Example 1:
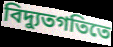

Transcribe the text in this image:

বিদ্যুতগতিতে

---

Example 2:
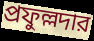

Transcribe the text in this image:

প্রফুল্লদার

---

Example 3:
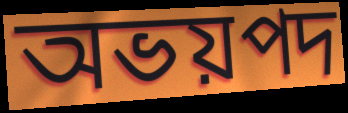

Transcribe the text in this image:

অভয়পদ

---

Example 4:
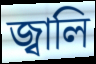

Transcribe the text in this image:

জ্বালি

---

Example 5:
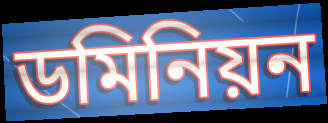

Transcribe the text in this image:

ডমিনিয়ন